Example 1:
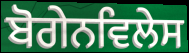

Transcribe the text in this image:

ਬੋਗੇਨਵਿਲੇਸ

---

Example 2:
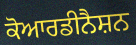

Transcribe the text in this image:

ਕੋਆਰਡੀਨੈਸ਼ਨ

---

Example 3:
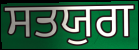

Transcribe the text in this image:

ਸਤਯੁਗ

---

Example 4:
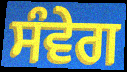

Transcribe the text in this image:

ਸੰਵੇਗ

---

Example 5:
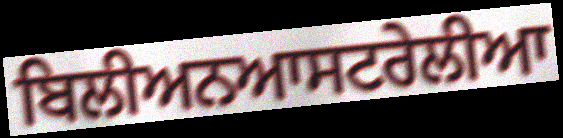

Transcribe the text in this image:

ਬਿਲੀਅਨਆਸਟਰੇਲੀਆ